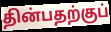
தின்பதற்குப்